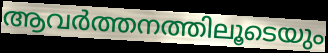
ആവർത്തനത്തിലൂടെയും